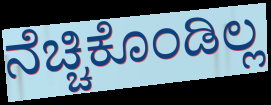
ನೆಚ್ಚಿಕೊಂಡಿಲ್ಲ